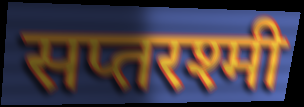
सप्तरश्मी